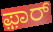
ಫ಼ಾರ್